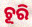
ଚୂରି